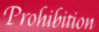
Prohibition